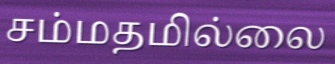
சம்மதமில்லை